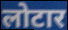
लोटार